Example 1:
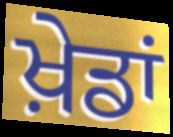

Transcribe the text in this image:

ਖ਼ੇਡਾਂ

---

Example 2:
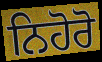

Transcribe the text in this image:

ਨਿਹੋਰੋ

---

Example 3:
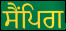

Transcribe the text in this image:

ਸੈਂਪਿਗ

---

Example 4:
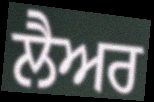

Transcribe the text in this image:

ਲੈਅਰ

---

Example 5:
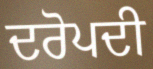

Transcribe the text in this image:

ਦਰੋਪਦੀ